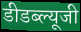
डीडब्ल्यूजी